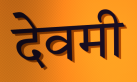
देवमी